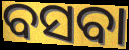
ବସବା